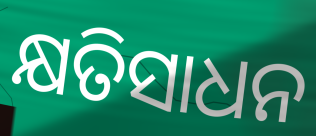
କ୍ଷତିସାଧନ